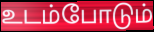
உடம்போடும்